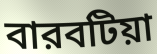
বারবটিয়া